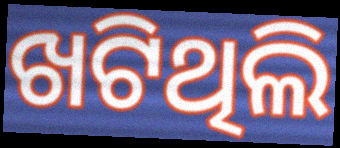
ଖଟିଥିଲି